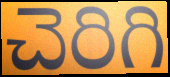
చెరిగి